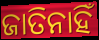
ଜାତିନାହିଁ